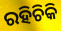
ରହିଚିକି